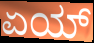
ಏಯ್